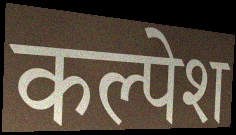
कल्पेश